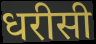
धरीसी